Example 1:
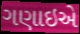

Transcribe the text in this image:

ગણાઇએ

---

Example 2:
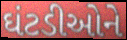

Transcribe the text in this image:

ઘંટડીઓને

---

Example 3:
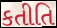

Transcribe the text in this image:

કતીતિ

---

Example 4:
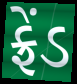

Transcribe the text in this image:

ફ્રેંડ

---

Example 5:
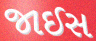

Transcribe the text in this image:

જાઈસ